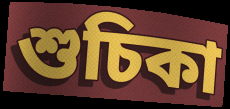
শুচিকা